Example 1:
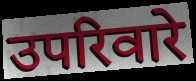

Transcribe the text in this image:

उपरिवारे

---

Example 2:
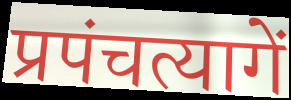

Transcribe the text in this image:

प्रपंचत्यागें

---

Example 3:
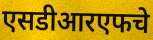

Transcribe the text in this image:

एसडीआरएफचे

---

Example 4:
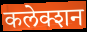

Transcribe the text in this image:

कलेक्शन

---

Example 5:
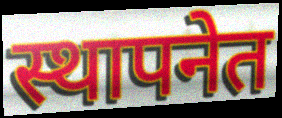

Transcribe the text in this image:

स्थापनेत